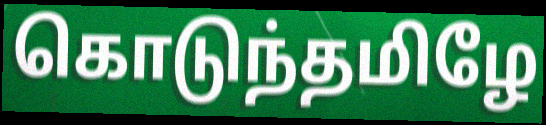
கொடுந்தமிழே